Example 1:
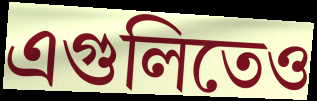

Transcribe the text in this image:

এগুলিতেও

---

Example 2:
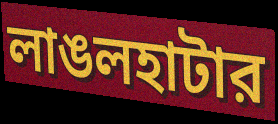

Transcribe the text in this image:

লাঙলহাটার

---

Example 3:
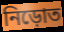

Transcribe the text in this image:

নিড়োত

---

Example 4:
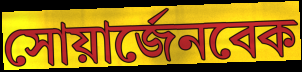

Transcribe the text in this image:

সোয়ার্জেনবেক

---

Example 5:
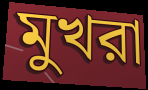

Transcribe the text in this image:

মুখরা